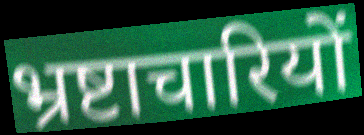
भ्रष्टाचारियों